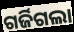
ଗର୍ଜିଗଲା